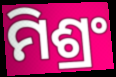
ମିଶ୍ରଂ